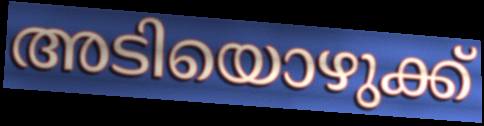
അടിയൊഴുക്ക്